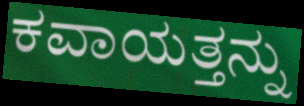
ಕವಾಯತ್ತನ್ನು